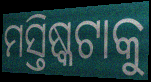
ମସ୍ତିଷ୍କଟାକୁ